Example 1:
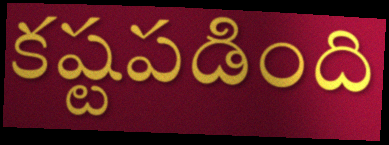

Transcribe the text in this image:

కష్టపడింది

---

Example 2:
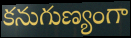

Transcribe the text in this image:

కనుగుణ్యంగా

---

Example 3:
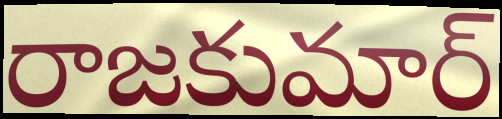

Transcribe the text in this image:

రాజకుమార్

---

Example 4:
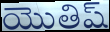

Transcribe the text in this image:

యొతిష్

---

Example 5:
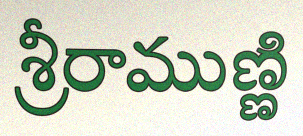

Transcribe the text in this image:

శ్రీరాముణ్ణి